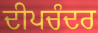
ਦੀਪਚੰਦਰ